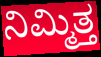
ನಿಮ್ಮಿತ್ತ